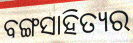
ବଙ୍ଗସାହିତ୍ୟର